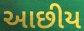
આછીય